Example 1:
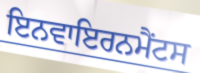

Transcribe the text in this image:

ਇਨਵਾਇਰਨਮੈਂਟਸ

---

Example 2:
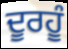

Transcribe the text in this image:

ਦੂਰਹੂੰ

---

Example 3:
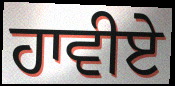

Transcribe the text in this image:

ਹਾਵੀਏ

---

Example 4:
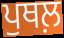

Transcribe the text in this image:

ਪੁਥਲ਼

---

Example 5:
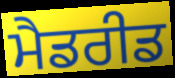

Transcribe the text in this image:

ਮੈਡਰੀਡ